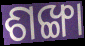
ଶଙ୍ଖା